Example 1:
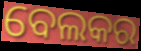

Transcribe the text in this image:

ବେଲକର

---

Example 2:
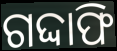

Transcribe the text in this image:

ଗଦ୍ଦାଫି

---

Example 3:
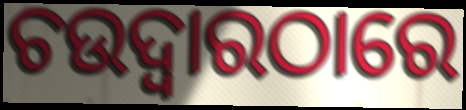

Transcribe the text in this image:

ଚଉଦ୍ଵାରଠାରେ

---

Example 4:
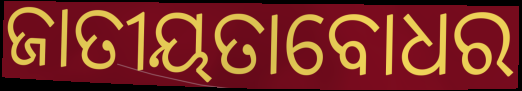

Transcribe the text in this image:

ଜାତୀୟତାବୋଧର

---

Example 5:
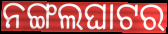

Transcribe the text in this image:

ନଙ୍ଗଲଘାଟର